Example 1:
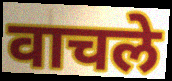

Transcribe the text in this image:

वाचले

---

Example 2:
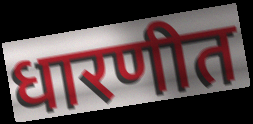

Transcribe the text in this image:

धारणीत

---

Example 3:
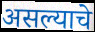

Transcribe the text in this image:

असल्‍याचे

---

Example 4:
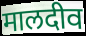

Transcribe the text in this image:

मालदीव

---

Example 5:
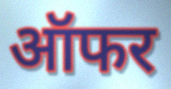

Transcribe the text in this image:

ऑफर